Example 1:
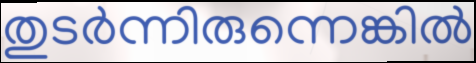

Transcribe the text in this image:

തുടർന്നിരുന്നെങ്കിൽ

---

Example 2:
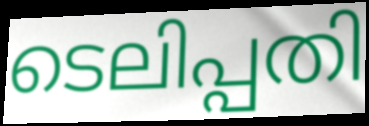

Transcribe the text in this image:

ടെലിപ്പതി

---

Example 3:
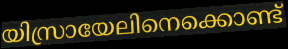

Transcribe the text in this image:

യിസ്രായേലിനെക്കൊണ്ട്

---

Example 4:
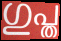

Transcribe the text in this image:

ഗുപ്ത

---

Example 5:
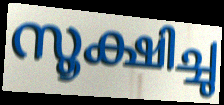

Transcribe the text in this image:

സൂക്ഷിച്ചു